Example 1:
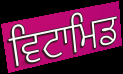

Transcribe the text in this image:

ਵਿਟਾਮਿਡ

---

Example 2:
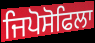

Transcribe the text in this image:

ਜਿਪੋਸੋਫਿਲਾ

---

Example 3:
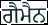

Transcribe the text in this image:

ਗੈਮੈਨ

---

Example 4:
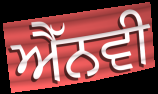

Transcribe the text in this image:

ਐੱਨਵੀ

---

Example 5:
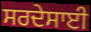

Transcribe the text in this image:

ਸਰਦੇਸਾਈ